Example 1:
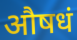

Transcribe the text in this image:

औषधं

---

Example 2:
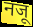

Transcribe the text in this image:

नजू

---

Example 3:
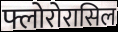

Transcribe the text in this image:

फ्लोरोरासिल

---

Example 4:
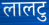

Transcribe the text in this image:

लालटु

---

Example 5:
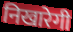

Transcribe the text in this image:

निखारेगी